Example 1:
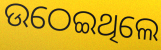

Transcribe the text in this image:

ଉଠେଇଥିଲେ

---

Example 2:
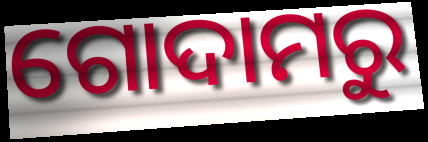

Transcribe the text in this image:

ଗୋଦାମରୁ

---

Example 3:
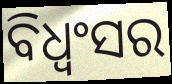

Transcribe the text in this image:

ବିଧ୍ୱଂସର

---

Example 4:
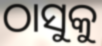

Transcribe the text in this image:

ଠାସୁକୁ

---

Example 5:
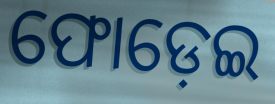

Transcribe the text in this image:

ଫୋଡ଼େଇ